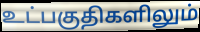
உட்பகுதிகளிலும்